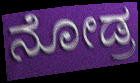
ನೋಡ್ರ